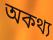
অকথ্য